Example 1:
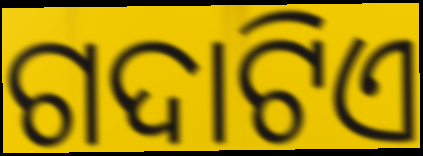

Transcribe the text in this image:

ଗଦାଟିଏ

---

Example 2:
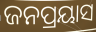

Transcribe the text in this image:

ଜନପ୍ରୟାସ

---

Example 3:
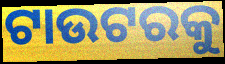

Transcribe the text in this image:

ଟାଉଟରକୁ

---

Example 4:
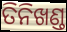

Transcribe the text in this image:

ତିନିଖଣ୍ଡ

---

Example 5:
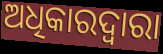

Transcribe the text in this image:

ଅଧିକାରଦ୍ୱାରା